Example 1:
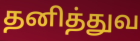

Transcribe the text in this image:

தனித்துவ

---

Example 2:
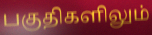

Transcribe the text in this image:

பகுதிகளிலும்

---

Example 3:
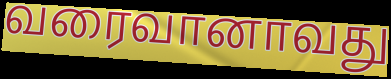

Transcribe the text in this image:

வரைவானாவது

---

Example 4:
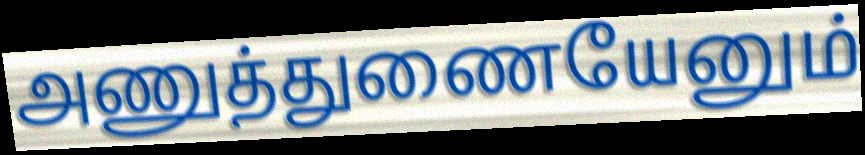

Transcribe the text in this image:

அணுத்துணையேனும்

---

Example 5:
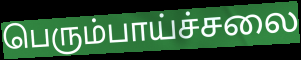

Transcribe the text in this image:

பெரும்பாய்ச்சலை